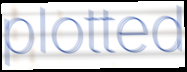
plotted